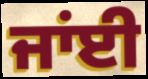
ਜਾਂਈ